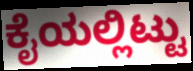
ಕೈಯಲ್ಲಿಟ್ಟು